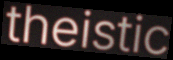
theistic